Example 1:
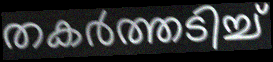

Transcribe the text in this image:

തകർത്തടിച്ച്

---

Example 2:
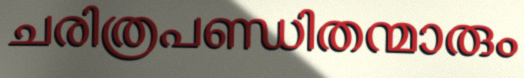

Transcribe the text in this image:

ചരിത്രപണ്ഡിതന്മാരും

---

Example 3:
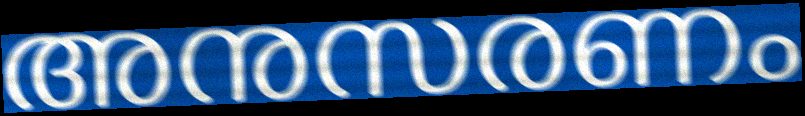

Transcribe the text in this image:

അനുസരണം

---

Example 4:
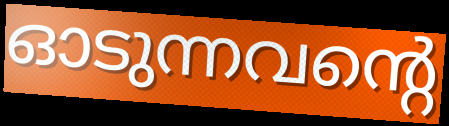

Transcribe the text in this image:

ഓടുന്നവന്റെ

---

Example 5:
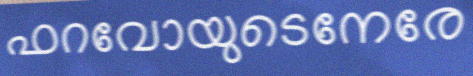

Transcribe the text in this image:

ഫറവോയുടെനേരേ